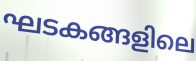
ഘടകങ്ങളിലെ